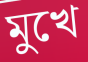
মুখে